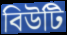
বিউটি